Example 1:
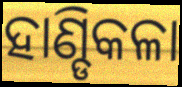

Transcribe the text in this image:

ହାଣ୍ଡିକଳା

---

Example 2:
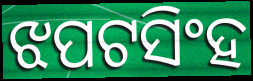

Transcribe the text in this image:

ଝପଟସିଂହ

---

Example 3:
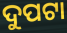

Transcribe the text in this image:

ଦୁପଟା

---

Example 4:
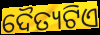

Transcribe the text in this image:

ଦୈତ୍ୟଟିଏ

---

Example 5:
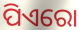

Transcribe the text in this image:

ପିଏରୋ